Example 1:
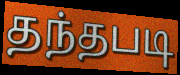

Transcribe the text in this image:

தந்தபடி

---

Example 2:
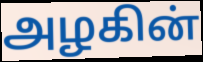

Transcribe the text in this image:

அழகின்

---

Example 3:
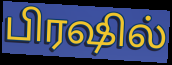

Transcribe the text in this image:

பிரஷில்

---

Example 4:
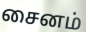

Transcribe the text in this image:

சைனம்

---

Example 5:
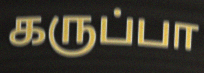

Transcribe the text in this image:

கருப்பா